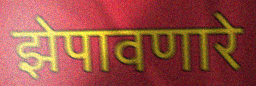
झेपावणारे